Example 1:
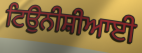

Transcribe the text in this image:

ਟਿਉਨੀਸ਼ੀਆਈ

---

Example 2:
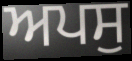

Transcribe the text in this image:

ਅਪਸੁ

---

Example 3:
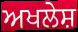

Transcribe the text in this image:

ਅਖਲੇਸ਼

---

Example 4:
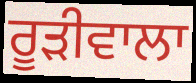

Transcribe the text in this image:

ਰੂਡ਼ੀਵਾਲਾ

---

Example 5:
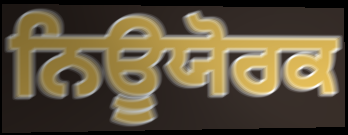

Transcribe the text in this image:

ਨਿਊਯੋਰਕ